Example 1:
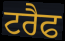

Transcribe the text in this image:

ਟਰੈਫ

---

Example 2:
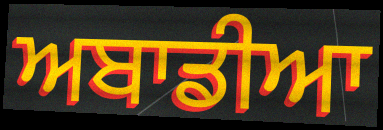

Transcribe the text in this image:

ਅਬਾਡੀਆ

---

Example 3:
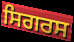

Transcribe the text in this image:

ਸਿਗਰਸ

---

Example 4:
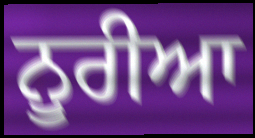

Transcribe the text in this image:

ਨੂਰੀਆ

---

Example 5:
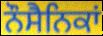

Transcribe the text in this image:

ਨੌਸੈਨਿਕਾਂ